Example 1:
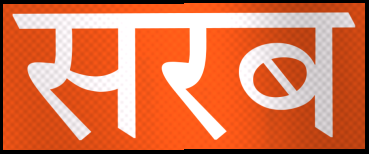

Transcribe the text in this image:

सरब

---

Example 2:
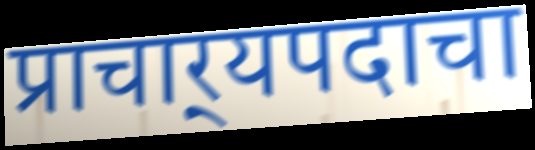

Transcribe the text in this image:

प्राचार्यपदाचा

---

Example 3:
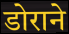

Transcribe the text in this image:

डोराने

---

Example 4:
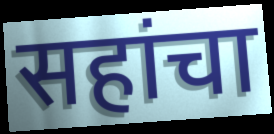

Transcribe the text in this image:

सहांचा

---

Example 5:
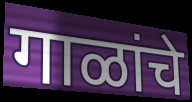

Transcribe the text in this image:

गाळांचे